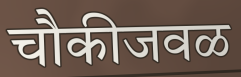
चौकीजवळ